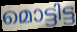
മൊട്ടിട്ട